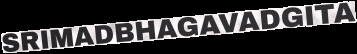
SRIMADBHAGAVADGITA